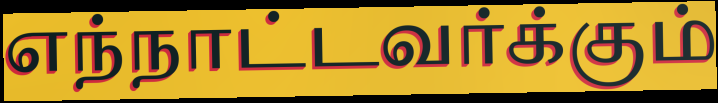
எந்நாட்டவர்க்கும்